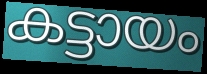
കട്ടായം